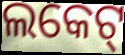
ଲକେଟ୍